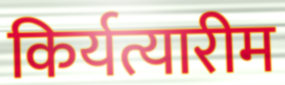
किर्यत्यारीम